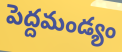
పెద్దమండ్యం